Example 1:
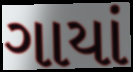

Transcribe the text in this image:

ગાયાં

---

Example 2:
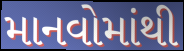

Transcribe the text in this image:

માનવોમાંથી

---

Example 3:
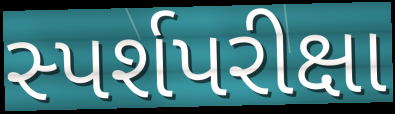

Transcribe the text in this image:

સ્પર્શપરીક્ષા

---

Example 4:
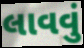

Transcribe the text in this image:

લાવવું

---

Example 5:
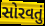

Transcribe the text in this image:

સોરવતું